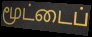
மூட்டைப்